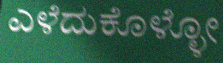
ಎಳೆದುಕೊಳ್ಳೋ